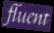
fluent